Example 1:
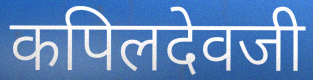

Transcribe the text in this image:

कपिलदेवजी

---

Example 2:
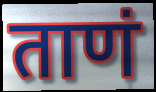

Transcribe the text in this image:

ताणं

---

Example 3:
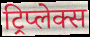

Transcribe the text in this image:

ट्रिप्लेक्स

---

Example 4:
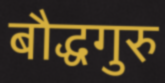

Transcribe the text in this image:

बौद्धगुरु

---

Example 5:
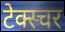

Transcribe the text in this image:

टेक्स्चर